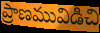
ప్రాణమువిడిచి